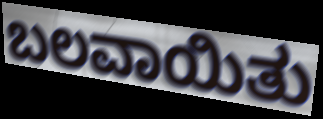
ಬಲವಾಯಿತು